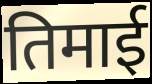
तिमाई